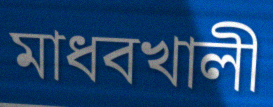
মাধবখালী